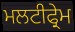
ਮਲਟੀਫ੍ਰੇਮ